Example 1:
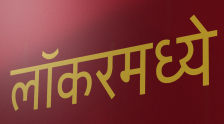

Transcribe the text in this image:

लॉकरमध्ये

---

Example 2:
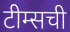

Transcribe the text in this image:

टीम्सची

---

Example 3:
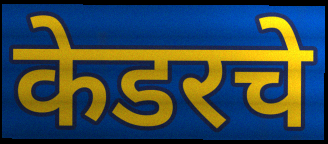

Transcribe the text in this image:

केडरचे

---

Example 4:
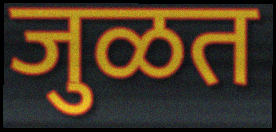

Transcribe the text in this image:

जुळत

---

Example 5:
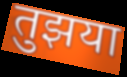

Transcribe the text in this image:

तुझया